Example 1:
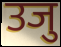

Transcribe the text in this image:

उजु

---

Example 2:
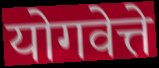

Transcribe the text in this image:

योगवेत्ते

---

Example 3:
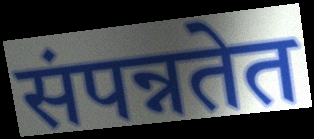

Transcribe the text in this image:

संपन्नतेत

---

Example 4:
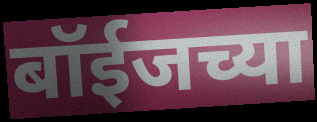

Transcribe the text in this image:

बॉईजच्या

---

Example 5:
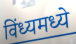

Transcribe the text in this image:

विंध्यमध्ये